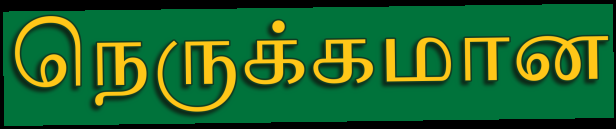
நெருக்கமான